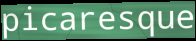
picaresque